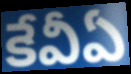
కేవీఏ